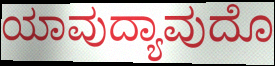
ಯಾವುದ್ಯಾವುದೊ